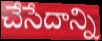
చేసేదాన్ని